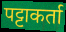
पट्टाकर्ता